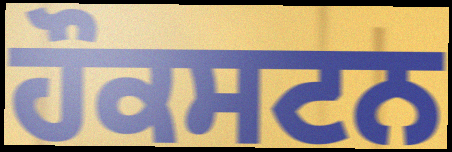
ਹੌਕਸਟਨ